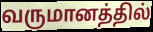
வருமானத்தில்